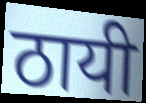
ठायी